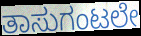
ತಾಸುಗಂಟಲೇ